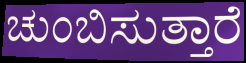
ಚುಂಬಿಸುತ್ತಾರೆ